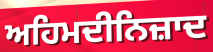
ਅਹਿਮਦੀਨਿਜ਼ਾਦ